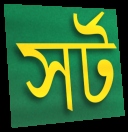
সর্ট